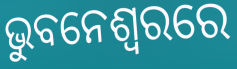
ଭୁବନେଶ୍ଵରରେ